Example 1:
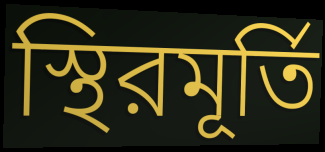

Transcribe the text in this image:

স্থিরমূর্তি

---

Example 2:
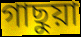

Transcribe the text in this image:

গাছুয়া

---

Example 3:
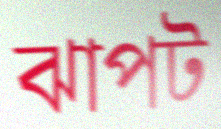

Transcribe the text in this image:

ঝাপট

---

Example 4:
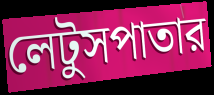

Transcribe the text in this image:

লেটুসপাতার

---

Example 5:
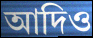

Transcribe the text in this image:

আদিও